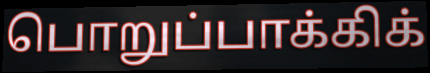
பொறுப்பாக்கிக்